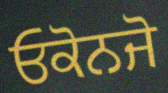
ਓਕੋਨਜੋ